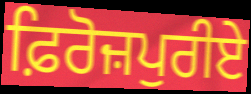
ਫ਼ਿਰੋਜ਼ਪੁਰੀਏ